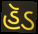
હૅડ